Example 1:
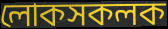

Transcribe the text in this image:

লোকসকলক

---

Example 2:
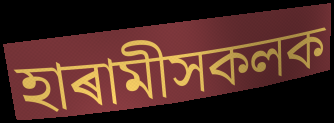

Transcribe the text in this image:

হাৰামীসকলক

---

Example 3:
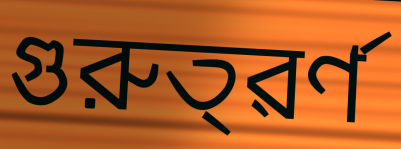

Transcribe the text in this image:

গুৰুত্ৱৰ্ণ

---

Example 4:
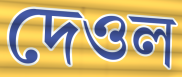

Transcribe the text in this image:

দেওল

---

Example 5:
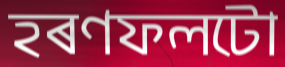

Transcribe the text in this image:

হৰণফলটো